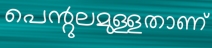
പെന്റുലമുള്ളതാണ്